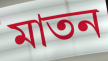
মাতন